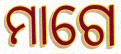
ମାଗେ